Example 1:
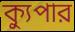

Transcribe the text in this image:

ক্যুপার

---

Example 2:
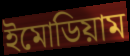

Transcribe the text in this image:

ইমোডিয়াম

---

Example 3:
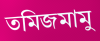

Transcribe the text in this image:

তমিজমামু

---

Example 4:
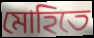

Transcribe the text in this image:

মোহিতে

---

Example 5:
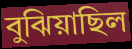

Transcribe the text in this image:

বুঝিয়াছিল